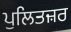
ਪੁਲਿਤਜ਼ਰ